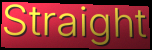
Straight